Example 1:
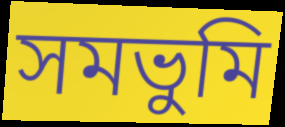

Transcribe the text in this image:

সমভুমি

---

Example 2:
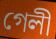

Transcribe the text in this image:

গেলী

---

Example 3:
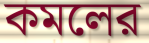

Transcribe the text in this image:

কমলের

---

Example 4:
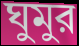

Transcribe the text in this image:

ঘুমুর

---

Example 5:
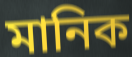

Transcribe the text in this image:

মানিক